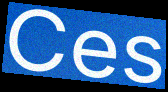
Ces